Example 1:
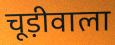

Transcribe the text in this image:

चूड़ीवाला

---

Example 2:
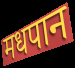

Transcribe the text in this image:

मधपान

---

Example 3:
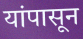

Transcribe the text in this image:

यांपासून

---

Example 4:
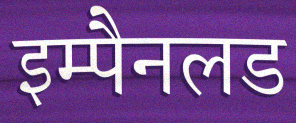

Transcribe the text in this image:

इम्पैनलड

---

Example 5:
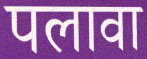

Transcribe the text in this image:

पलावा